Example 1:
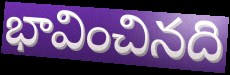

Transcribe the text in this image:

భావించినది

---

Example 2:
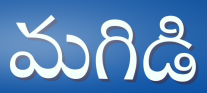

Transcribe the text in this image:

మగిడి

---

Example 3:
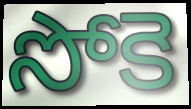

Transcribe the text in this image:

సోకె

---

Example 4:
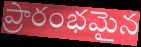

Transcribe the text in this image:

ప్రారంభమైన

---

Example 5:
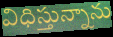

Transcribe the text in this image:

విధిస్తున్నాను